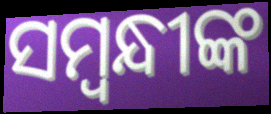
ସମ୍ବନ୍ଧୀଙ୍କ